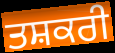
ਤਸ਼ਕਰੀ